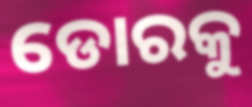
ଡୋରକୁ